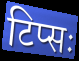
टिप्सः